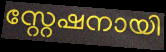
സ്റ്റേഷനായി